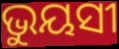
ଭୁୟସୀ